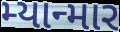
મ્યાન્માર